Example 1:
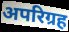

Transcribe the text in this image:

अपरिग्रह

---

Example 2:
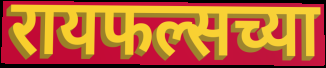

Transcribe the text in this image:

रायफल्सच्या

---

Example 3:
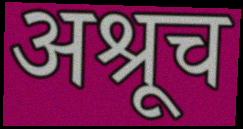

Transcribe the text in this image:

अश्रूच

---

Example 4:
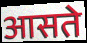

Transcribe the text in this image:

आसते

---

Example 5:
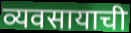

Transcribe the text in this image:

व्यवसायाची